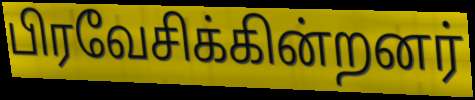
பிரவேசிக்கின்றனர்